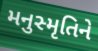
મનુસ્મૃતિને